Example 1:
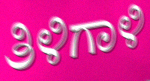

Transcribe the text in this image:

ತಿಳಿಗಾಳಿ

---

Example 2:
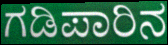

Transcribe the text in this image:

ಗಡಿಪಾರಿನ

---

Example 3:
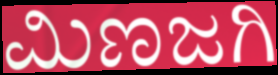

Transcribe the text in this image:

ಮಿಣಜಗಿ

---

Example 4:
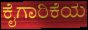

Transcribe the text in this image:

ಕೈಗಾರಿಕೆಯ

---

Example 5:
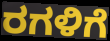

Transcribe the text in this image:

ರಗಳಿಗೆ